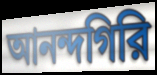
আনন্দগিরি